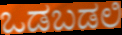
ಒಡಬಡಲಿ